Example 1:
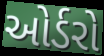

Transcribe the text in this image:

ઓર્ડરો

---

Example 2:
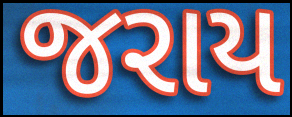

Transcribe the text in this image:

જરાય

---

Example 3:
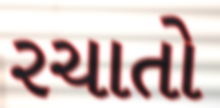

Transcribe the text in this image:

રચાતો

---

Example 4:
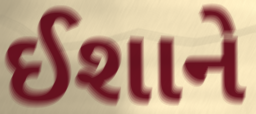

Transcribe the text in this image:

ઈશાને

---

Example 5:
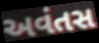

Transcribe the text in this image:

અવંતસ